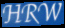
HRW